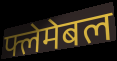
फ्लेमेबल